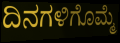
ದಿನಗಳಿಗೊಮ್ಮೆ